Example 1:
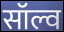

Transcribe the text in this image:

सॉल्व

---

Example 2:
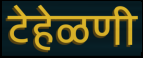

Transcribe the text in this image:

टेहेळणी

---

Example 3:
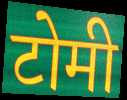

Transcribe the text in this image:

टोमी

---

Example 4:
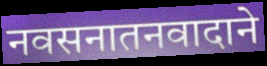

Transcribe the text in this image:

नवसनातनवादाने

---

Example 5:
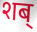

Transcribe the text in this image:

शब्